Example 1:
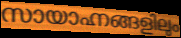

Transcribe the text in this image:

സായാഹ്നങ്ങളിലും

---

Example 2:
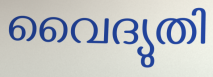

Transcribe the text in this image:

വൈദ്യുതി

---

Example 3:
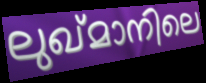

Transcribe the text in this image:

ലുഖ്മാനിലെ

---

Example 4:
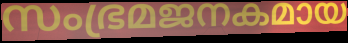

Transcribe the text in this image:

സംഭ്രമജനകമായ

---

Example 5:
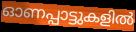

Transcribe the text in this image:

ഓണപ്പാട്ടുകളിൽ